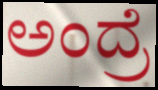
ಅಂದ್ರೆ